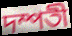
দম্পতী